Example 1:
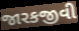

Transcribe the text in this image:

જારકજીવી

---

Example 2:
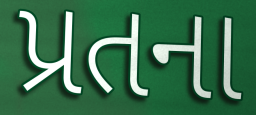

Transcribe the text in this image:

પ્રતના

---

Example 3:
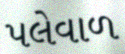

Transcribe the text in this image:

પલેવાળ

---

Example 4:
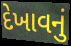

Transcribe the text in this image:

દેખાવનું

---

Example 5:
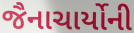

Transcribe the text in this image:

જૈનાચાર્યોની